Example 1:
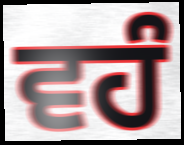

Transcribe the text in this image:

ਵਹੰ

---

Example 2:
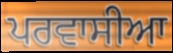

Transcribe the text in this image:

ਪਰਵਾਸੀਆ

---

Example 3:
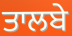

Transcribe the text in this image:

ਤਾਲਬੇ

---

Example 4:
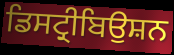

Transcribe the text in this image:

ਡਿਸਟ੍ਰੀਬਿਉਸ਼ਨ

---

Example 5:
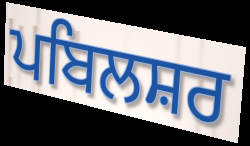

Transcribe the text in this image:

ਪਬਿਲਸ਼ਰ